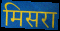
मिसरा